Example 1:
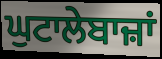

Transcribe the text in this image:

ਘੁਟਾਲੇਬਾਜ਼ਾਂ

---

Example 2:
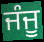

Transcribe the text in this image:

ਜੰਜੂ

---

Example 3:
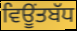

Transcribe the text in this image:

ਵਿਊਂਤਬੱਧ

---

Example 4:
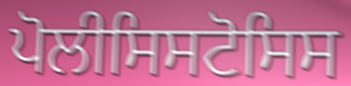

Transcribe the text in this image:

ਪੋਲੀਸਿਸਟੋਸਿਸ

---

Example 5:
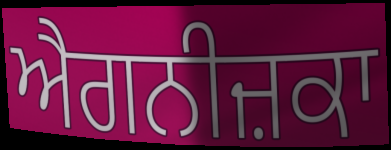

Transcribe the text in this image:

ਐਗਨੀਜ਼ਕਾ